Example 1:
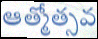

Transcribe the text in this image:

ఆత్మోత్సవ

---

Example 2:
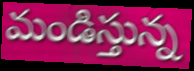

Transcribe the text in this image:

మండిస్తున్న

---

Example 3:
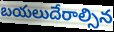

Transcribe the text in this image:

బయలుదేరాల్సిన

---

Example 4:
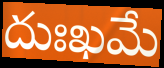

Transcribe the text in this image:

దుఃఖమే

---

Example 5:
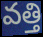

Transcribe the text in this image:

వత్తి